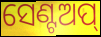
ସେଣ୍ଟଅପ୍